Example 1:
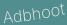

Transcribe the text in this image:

Adbhoot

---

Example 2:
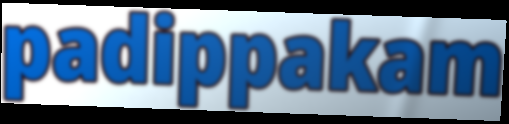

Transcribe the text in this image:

padippakam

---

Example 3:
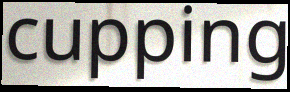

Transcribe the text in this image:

cupping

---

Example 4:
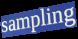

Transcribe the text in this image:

sampling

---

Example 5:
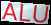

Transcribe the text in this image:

ALU